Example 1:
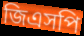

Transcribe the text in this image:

জিএসপি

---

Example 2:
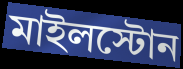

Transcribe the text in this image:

মাইলস্টোন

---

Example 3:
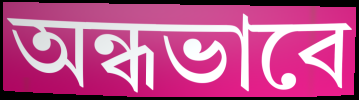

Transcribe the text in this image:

অন্ধভাবে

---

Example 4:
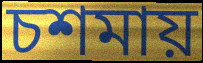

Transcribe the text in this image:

চশমায়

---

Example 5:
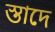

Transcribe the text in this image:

স্তাদে